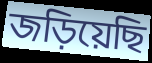
জড়িয়েছি